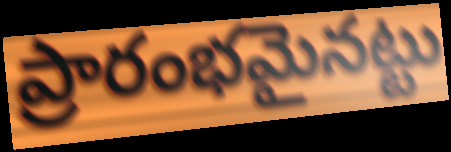
ప్రారంభమైనట్టు